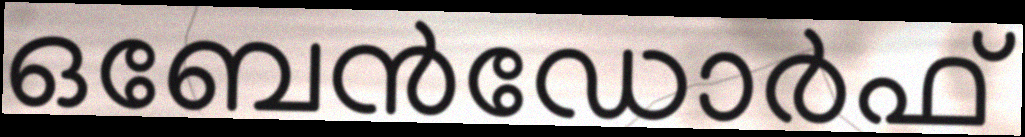
ഒബേൻഡോർഫ്